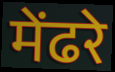
मेंढरे